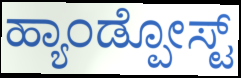
ಹ್ಯಾಂಡ್ಪೋಸ್ಟ್